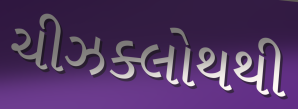
ચીઝક્લોથથી